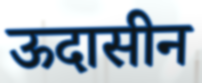
ऊदासीन